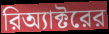
রিঅ্যাক্টরের